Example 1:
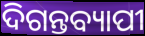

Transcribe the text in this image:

ଦିଗନ୍ତବ୍ୟାପୀ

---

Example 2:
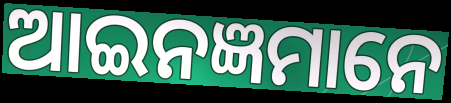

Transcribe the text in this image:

ଆଇନଜ୍ଞମାନେ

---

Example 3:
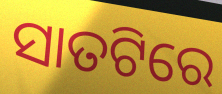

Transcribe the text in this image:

ସାତଟିରେ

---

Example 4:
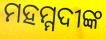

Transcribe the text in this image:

ମହମ୍ମଦୀଙ୍କ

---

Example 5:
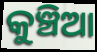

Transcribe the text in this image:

କୁଞ୍ଚିଆ